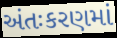
અંતઃકરણમાં